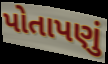
પોતાપણું